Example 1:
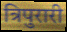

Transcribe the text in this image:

त्रिपुरारी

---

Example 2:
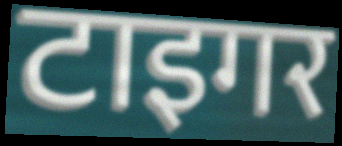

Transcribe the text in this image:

टाइगर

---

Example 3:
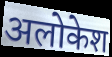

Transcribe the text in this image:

अलोकेश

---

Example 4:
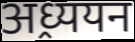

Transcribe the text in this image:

अ्रध्ययन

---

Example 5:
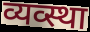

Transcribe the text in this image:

व्यव्स्था